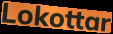
Lokottar